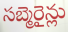
సబ్మెరైన్లు